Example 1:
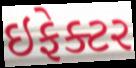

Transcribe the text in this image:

ઇફેક્ટર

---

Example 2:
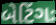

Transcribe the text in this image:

બેટિંગઃ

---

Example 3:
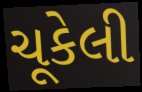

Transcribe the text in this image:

ચૂકેલી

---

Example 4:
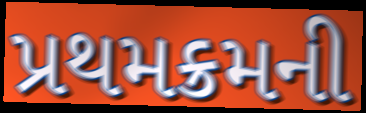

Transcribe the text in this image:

પ્રથમક્રમની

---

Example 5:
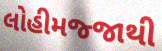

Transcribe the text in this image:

લોહીમજ્જાથી